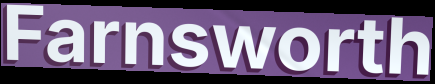
Farnsworth